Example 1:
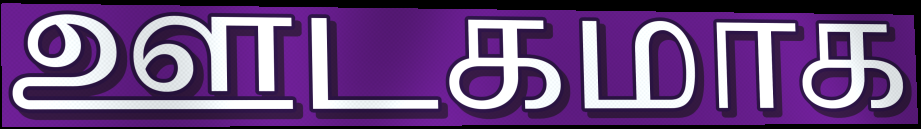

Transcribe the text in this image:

ஊடகமாக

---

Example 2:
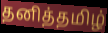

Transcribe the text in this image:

தனித்தமிழ்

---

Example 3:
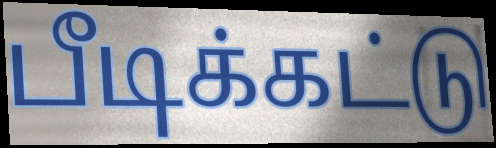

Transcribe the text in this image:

பீடிக்கட்டு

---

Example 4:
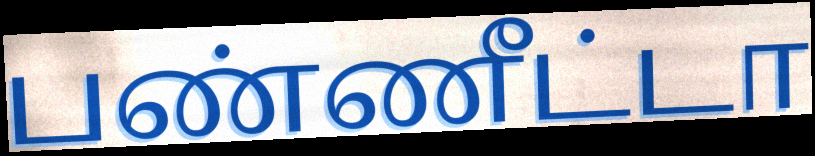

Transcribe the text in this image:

பண்ணீட்டா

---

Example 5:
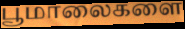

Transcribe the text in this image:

பூமாலைகளை